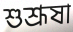
শুশ্রূষা